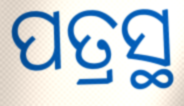
ପତ୍ରସ୍ଥ